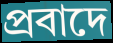
প্রবাদে